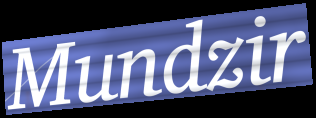
Mundzir